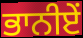
ਭਾਨੀਏਂ